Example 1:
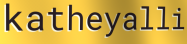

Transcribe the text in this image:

katheyalli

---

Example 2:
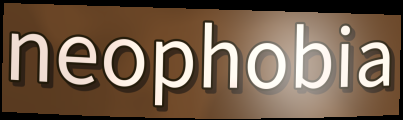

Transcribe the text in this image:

neophobia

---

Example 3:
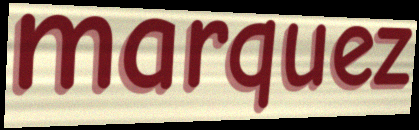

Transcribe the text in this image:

marquez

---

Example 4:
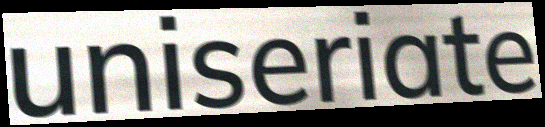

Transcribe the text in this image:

uniseriate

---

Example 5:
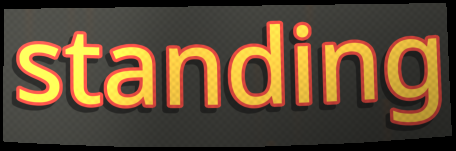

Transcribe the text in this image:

standing